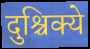
दुश्चिक्ये